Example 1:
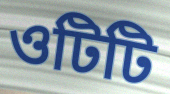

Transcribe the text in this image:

ওটিটি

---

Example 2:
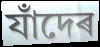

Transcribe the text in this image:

যাঁদেৰ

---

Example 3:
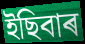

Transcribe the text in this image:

ইছিবাৰ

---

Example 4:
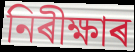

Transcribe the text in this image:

নিৰীক্ষাৰ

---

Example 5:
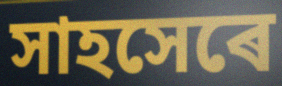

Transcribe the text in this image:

সাহসেৰে